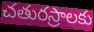
చతురస్రాలకు